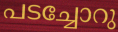
പടച്ചോറു